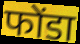
फोंडा